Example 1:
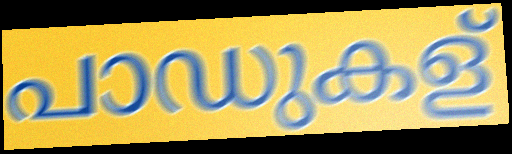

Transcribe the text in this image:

പാഡുകള്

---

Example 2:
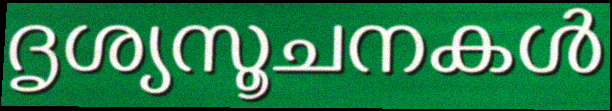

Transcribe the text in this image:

ദൃശ്യസൂചനകൾ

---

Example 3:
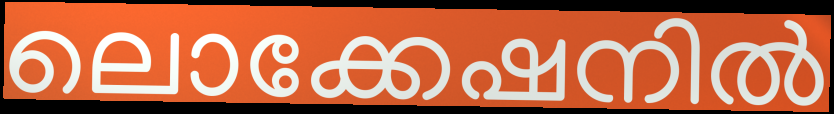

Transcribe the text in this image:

ലൊക്കേഷനിൽ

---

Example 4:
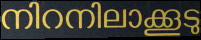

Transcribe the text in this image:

നിറനിലാക്കൂടു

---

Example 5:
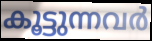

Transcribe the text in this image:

കൂട്ടുന്നവർ